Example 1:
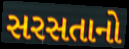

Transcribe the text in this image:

સરસતાનો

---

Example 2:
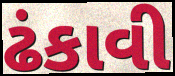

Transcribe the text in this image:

ઢંકાવી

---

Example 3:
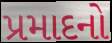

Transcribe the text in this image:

પ્રમાદનો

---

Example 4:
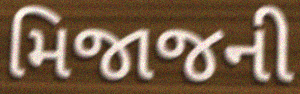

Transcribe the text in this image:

મિજાજની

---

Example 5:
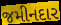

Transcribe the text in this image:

જમીનદાર